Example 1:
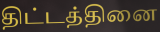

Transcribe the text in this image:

திட்டத்தினை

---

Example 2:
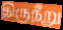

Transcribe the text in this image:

திருநீறு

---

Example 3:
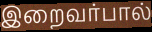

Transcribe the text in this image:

இறைவர்பால்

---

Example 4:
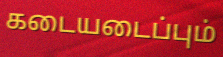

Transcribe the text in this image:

கடையடைப்பும்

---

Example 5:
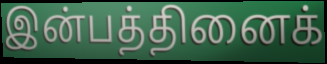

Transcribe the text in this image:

இன்பத்தினைக்